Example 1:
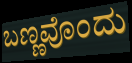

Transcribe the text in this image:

ಬಣ್ಣವೊಂದು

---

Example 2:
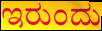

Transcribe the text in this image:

ಇರುಂದು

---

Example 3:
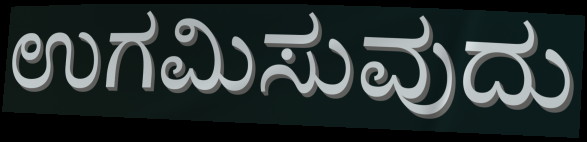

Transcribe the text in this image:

ಉಗಮಿಸುವುದು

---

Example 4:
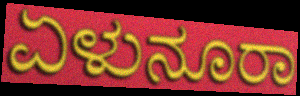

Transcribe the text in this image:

ಏಳುನೂರಾ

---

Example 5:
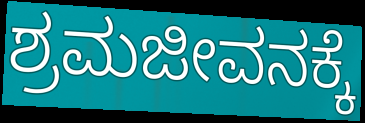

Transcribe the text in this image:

ಶ್ರಮಜೀವನಕ್ಕೆ